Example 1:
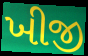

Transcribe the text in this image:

ખીજી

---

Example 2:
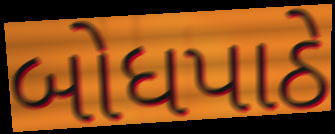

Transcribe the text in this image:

બોધપાઠે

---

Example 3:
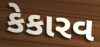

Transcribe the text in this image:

કેકારવ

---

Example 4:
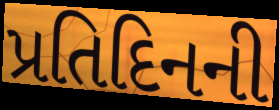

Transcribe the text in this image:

પ્રતિદિનની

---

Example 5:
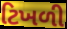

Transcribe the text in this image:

ટિખળી